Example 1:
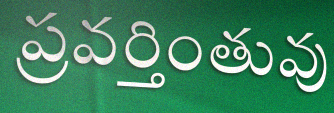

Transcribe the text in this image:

ప్రవర్తింతువు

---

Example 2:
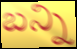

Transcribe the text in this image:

బన్ని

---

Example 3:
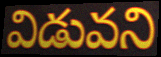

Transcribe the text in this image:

విడువని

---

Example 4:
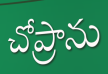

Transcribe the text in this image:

చోప్రాను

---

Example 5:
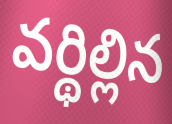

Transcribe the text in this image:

వర్థిల్లిన